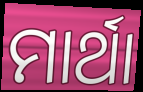
ମାର୍ଥା